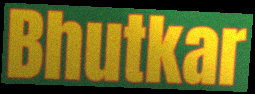
Bhutkar